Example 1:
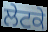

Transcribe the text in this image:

ਲੇਟਕੇ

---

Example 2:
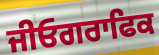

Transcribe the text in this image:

ਜੀਓਗਰਾਫਿਕ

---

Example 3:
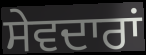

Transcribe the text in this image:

ਸੇਵਦਾਰਾਂ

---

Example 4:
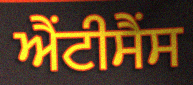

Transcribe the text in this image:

ਐਂਟੀਸੈਂਸ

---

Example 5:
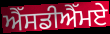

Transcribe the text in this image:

ਐੱਸਡੀਐੱਮਏ